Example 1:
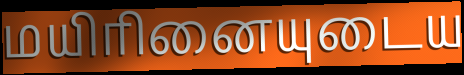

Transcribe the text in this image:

மயிரினையுடைய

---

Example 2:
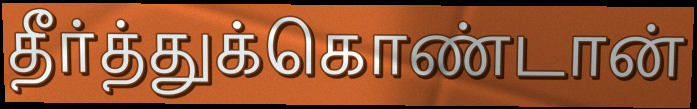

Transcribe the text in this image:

தீர்த்துக்கொண்டான்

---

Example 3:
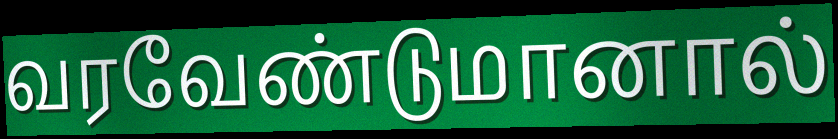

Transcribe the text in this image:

வரவேண்டுமானால்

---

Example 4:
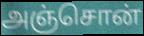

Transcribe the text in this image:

அஞ்சொன்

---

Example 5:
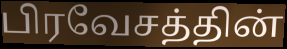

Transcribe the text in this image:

பிரவேசத்தின்